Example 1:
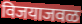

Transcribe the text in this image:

विजयाजवळ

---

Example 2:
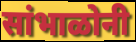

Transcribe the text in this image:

सांभाळोनी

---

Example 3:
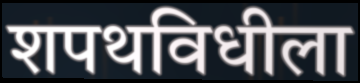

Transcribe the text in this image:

शपथविधीला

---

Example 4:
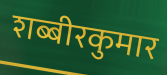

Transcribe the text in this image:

शब्बीरकुमार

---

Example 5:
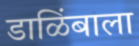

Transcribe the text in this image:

डाळिंबाला